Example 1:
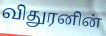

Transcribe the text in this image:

விதுரனின்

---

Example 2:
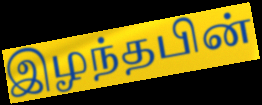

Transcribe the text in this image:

இழந்தபின்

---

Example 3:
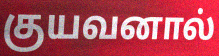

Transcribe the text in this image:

குயவனால்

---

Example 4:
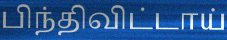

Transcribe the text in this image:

பிந்திவிட்டாய்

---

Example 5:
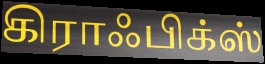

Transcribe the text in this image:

கிராஃபிக்ஸ்